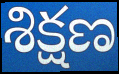
శిక్షణ